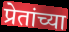
प्रेतांच्या